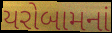
યરોબામનાં